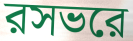
রসভরে